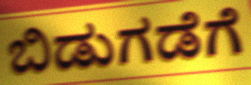
ಬಿಡುಗಡೆಗೆ